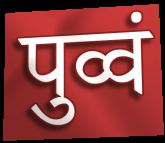
पुव्वं